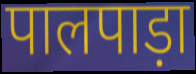
पालपाड़ा